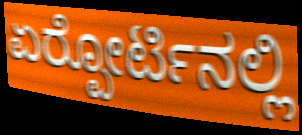
ಏರ್‍ಪೋರ್ಟಿನಲ್ಲಿ